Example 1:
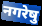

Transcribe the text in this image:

नगरेषु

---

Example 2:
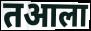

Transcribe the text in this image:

तआला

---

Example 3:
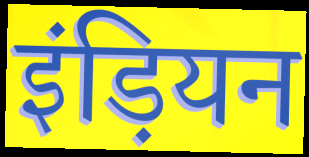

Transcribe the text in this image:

इंड़ियन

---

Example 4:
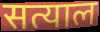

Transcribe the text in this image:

सत्याल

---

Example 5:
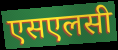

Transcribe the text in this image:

एसएलसी